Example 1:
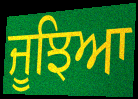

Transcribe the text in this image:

ਜੂਝਿਆ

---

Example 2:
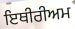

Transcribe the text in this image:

ਇਥੀਰੀਅਮ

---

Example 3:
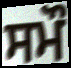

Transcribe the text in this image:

ਸਮੌ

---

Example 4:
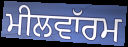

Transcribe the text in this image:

ਮੀਲਵਾੱਰਮ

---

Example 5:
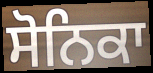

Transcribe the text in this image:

ਸੋਨਿਕਾ